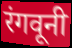
रंगवूनी